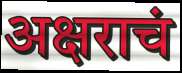
अक्षराचं